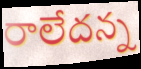
రాలేదన్న